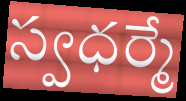
స్వధర్మే